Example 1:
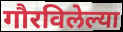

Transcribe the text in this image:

गौरविलेल्या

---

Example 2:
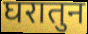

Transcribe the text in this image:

घरातुन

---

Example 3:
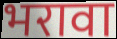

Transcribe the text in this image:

भरावा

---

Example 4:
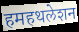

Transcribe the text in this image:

हमहथलेशन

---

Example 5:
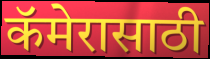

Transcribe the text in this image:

कॅमेरासाठी